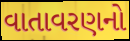
વાતાવરણનો